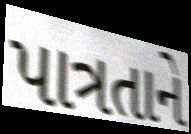
પાત્રતાને